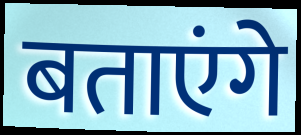
बताएंगे